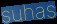
suhas